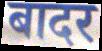
बादर